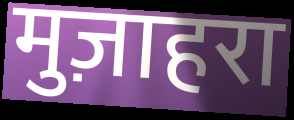
मुज़ाहरा